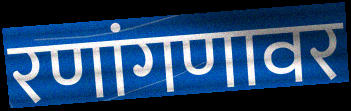
रणांगणावर